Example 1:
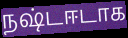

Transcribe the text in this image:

நஷ்டஈடாக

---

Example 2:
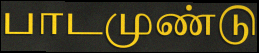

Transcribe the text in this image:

பாடமுண்டு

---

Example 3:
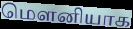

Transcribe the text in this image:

மெளனியாக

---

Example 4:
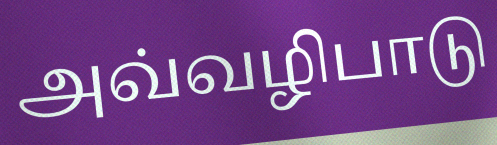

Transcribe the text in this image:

அவ்வழிபாடு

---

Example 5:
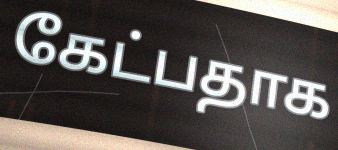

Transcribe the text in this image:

கேட்பதாக